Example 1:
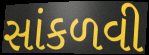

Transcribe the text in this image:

સાંકળવી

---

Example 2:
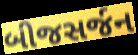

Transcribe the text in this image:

બીજસર્જન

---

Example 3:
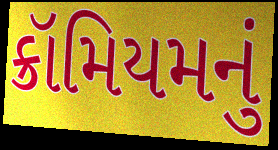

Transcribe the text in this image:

ક્રૉમિયમનું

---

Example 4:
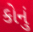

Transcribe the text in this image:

કોનું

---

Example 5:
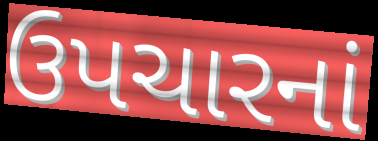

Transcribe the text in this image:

ઉપચારનાં